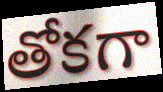
తోకగా